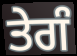
ਤੇਗੰ